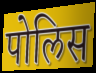
पोलिस